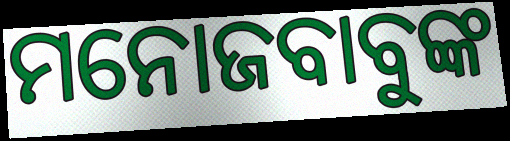
ମନୋଜବାବୁଙ୍କ